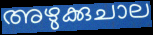
അഴുക്കുചാല